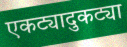
एकट्यादुकट्या